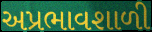
અપ્રભાવશાળી